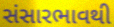
સંસારભાવથી